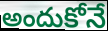
అందుకోనే